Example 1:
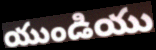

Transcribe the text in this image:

యుండియు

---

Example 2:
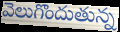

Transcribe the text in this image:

వెలుగొందుతున్న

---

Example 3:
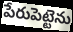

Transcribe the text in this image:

పేరుపెట్టెను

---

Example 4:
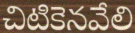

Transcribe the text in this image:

చిటికెనవేలి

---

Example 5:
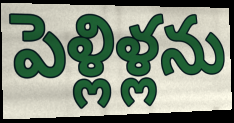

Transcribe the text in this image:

పెళ్లిళ్లను